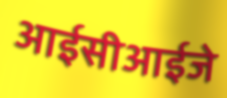
आईसीआईजे